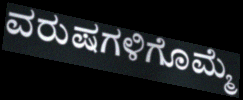
ವರುಷಗಳಿಗೊಮ್ಮೆ